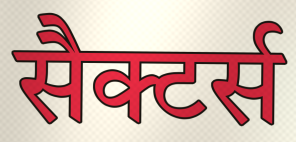
सैक्टर्स